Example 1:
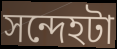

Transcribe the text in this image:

সন্দেহটা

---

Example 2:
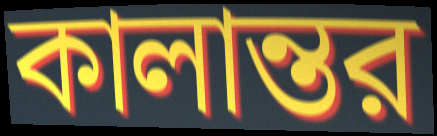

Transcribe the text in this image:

কালান্তর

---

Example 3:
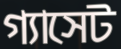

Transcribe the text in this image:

গ্যাসেট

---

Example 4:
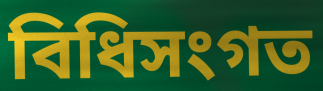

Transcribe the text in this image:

বিধিসংগত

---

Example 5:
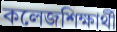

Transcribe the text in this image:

কলেজশিক্ষার্থী